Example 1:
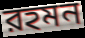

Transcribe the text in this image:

রহমন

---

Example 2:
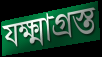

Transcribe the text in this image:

যক্ষ্মাগ্রস্ত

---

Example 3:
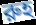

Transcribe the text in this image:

রুহ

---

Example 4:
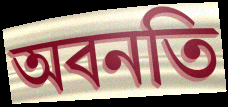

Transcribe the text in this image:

অবনতি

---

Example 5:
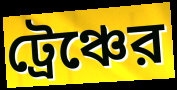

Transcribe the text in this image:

ট্রেঞ্চের